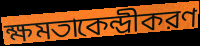
ক্ষমতাকেন্দ্রীকরণ